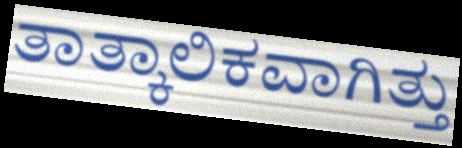
ತಾತ್ಕಾಲಿಕವಾಗಿತ್ತು